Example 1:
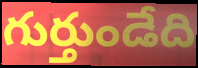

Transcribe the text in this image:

గుర్తుండేది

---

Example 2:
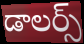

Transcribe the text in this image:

డాలర్స్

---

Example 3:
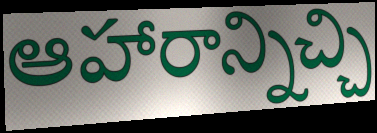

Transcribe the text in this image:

ఆహారాన్నిచ్చి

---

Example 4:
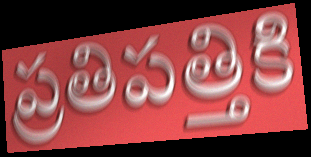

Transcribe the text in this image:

ప్రతిపత్తికి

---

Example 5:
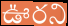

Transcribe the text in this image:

ఊరని